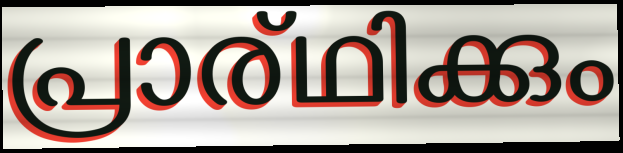
പ്രാര്ഥിക്കും